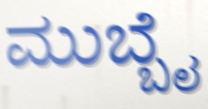
ಮುಬ್ಬೈ